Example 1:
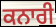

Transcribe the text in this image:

ਕਨਾਰੀ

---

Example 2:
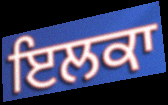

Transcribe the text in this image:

ਇਲਕਾ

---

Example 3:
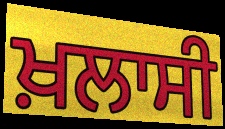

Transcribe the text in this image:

ਖ਼ਲਾਸੀ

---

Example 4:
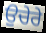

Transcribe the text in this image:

ਉਚੇਰੇ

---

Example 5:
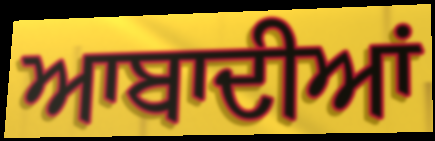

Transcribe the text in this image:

ਆਬਾਦੀਆਂ